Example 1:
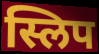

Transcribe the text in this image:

स्लिप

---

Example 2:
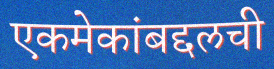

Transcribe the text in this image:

एकमेकांबद्दलची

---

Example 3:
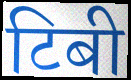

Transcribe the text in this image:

टिबी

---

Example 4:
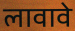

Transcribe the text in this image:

लावावे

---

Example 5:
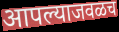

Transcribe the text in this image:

आपल्याजवळच